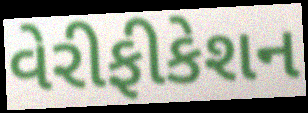
વેરીફીકેશન